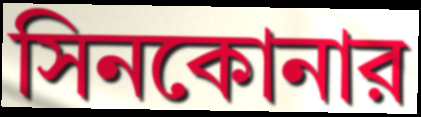
সিনকোনার